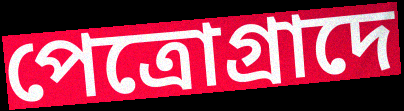
পেত্রোগ্রাদে